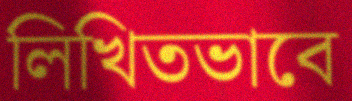
লিখিতভাবে